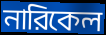
নারিকেল